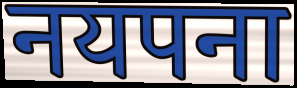
नयपना